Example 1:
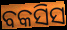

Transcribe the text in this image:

ବକସିସ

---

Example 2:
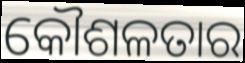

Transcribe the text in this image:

କୌଶଳତାର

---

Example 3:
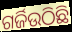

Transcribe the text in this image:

ଗର୍ଜିଉଠିଛି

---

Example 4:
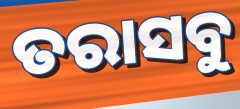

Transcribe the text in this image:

ତରାସବୁ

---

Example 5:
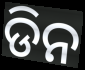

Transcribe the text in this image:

ଡିନ